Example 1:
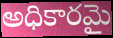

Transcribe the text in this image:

అధికారమై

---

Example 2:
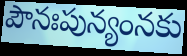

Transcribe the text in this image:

పౌనఃపున్యంనకు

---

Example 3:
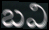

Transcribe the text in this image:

బవి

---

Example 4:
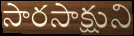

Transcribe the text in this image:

సారసాక్షుని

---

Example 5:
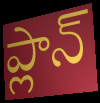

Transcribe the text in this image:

ప్లాన్